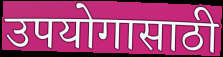
उपयोगासाठी